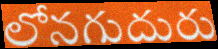
లోనగుదురు